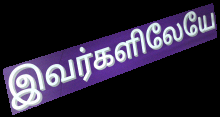
இவர்களிலேயே